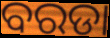
ବରଡା